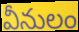
వీనులం